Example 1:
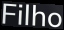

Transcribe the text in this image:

Filho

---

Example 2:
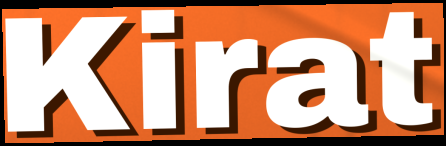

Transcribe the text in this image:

Kirat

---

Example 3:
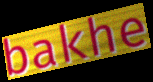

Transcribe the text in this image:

bakhe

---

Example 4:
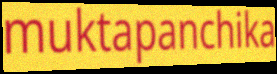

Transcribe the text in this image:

muktapanchika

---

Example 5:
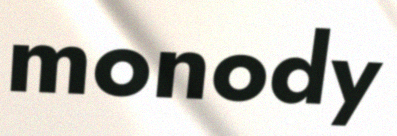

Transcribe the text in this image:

monody